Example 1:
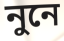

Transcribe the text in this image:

নুনে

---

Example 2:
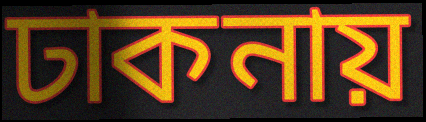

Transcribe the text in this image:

ঢাকনায়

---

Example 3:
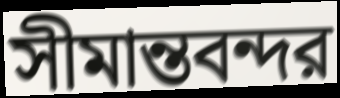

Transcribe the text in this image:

সীমান্তবন্দর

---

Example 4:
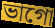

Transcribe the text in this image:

ভাগো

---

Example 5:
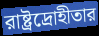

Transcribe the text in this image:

রাষ্ট্রদ্রোহীতার